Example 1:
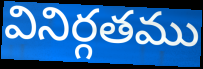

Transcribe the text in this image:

వినిర్గతము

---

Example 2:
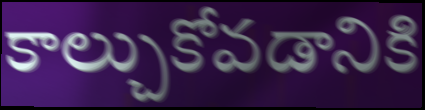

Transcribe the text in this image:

కాల్చుకోవడానికి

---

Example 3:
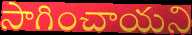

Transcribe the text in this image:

సాగించాయని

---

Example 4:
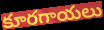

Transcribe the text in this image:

కూరగాయలు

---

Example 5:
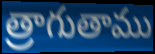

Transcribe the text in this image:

త్రాగుతాము